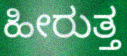
ಹೀರುತ್ತ